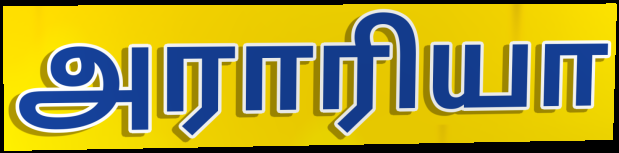
அராரியா